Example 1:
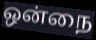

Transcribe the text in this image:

ஒன்நை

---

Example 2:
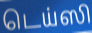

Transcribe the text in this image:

டெய்ஸி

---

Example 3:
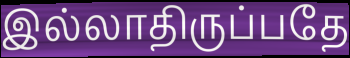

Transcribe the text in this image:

இல்லாதிருப்பதே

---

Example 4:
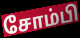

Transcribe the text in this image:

சோம்பி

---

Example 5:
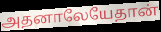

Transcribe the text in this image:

அதனாலேயேதான்